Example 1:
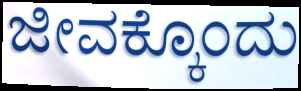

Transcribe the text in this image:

ಜೀವಕ್ಕೊಂದು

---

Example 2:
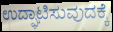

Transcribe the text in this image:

ಉದ್ಘಾಟಿಸುವುದಕ್ಕೆ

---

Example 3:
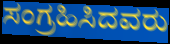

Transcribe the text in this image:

ಸಂಗ್ರಹಿಸಿದವರು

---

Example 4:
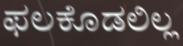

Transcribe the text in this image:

ಫಲಕೊಡಲಿಲ್ಲ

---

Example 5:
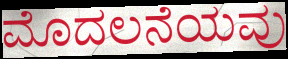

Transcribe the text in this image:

ಮೊದಲನೆಯವು